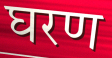
घरण